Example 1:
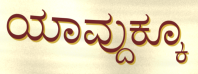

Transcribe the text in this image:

ಯಾವ್ದುಕ್ಕೂ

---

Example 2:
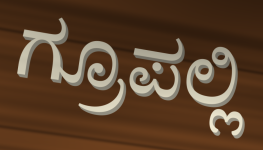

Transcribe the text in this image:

ಗ್ರೂಪಲ್ಲಿ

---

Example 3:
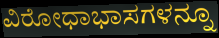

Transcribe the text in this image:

ವಿರೋಧಾಭಾಸಗಳನ್ನೂ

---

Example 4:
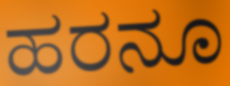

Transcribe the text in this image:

ಹರನೂ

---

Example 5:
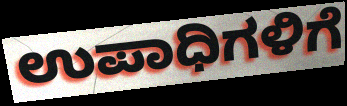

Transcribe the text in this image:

ಉಪಾಧಿಗಳಿಗೆ